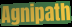
Agnipath